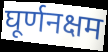
घूर्णनक्षम